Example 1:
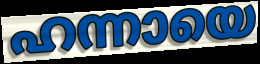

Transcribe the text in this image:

ഹന്നായെ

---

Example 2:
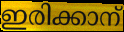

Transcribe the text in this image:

ഇരിക്കാന്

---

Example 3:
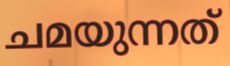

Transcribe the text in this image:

ചമയുന്നത്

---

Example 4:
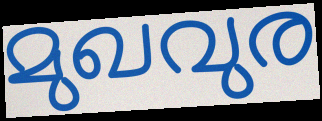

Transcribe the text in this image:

മുഖവുര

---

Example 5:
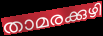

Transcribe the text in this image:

താമരക്കുഴി